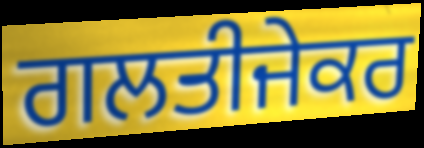
ਗਲਤੀਜੇਕਰ